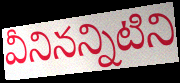
వీనినన్నిటిని